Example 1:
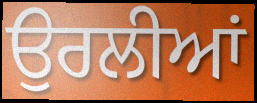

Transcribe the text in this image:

ਉਰਲੀਆਂ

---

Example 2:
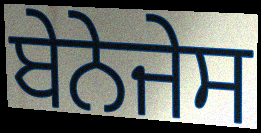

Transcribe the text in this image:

ਬੇਨੇਜੇਸ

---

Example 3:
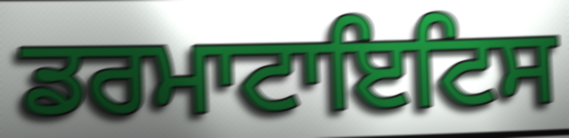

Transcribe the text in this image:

ਡਰਮਾਟਾਇਟਿਸ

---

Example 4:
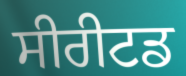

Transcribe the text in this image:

ਸੀਰੀਟਡ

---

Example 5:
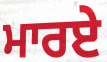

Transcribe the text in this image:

ਮਾਰਏ